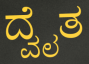
ದ್ವೈತ